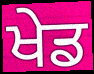
ਖੇਡ